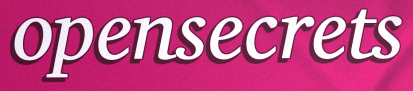
opensecrets